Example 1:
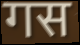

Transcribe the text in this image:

गस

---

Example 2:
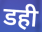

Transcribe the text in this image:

डही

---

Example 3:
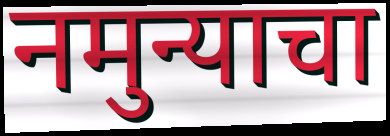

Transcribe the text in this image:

नमुन्याचा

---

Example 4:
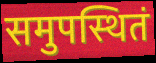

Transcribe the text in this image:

समुपस्थितं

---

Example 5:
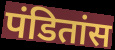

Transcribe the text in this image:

पंडितांस